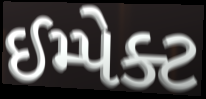
ઈમ્પેક્ટ